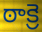
ఠాక్రె